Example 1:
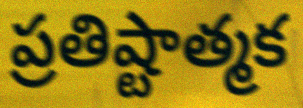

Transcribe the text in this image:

ప్రతిష్టాత్మక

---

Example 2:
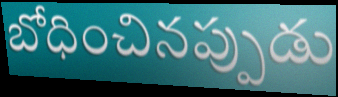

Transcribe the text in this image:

బోధించినప్పుడు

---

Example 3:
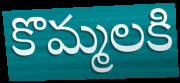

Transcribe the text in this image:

కొమ్మలకి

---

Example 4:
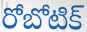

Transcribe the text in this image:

రోబోటిక్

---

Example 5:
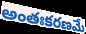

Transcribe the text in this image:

అంతఃకరణమే